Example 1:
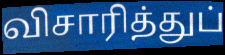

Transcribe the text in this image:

விசாரித்துப்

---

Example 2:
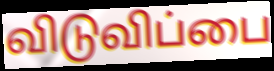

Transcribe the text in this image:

விடுவிப்பை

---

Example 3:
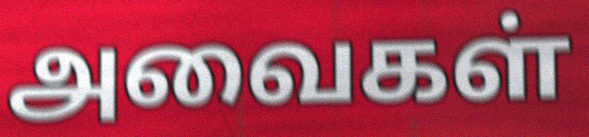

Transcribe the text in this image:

அவைகள்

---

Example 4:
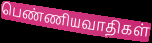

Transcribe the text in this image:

பெண்ணியவாதிகள்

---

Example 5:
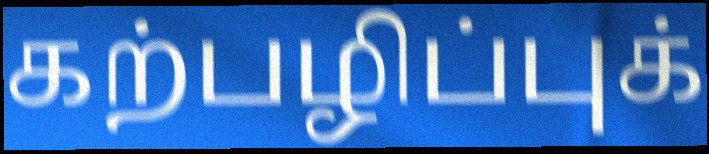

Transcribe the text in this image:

கற்பழிப்புக்